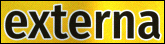
externa